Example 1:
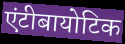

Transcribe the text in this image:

एंटीबायोटिक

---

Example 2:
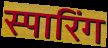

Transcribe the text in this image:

स्पारिंग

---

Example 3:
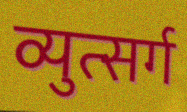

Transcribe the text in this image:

व्युत्सर्ग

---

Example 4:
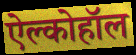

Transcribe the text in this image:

ऐल्कोहॉल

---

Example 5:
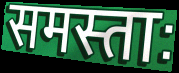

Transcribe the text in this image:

समस्ताः